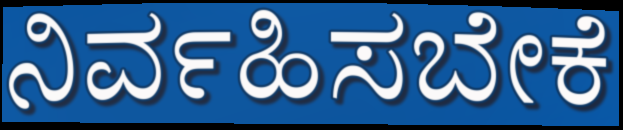
ನಿರ್ವಹಿಸಬೇಕೆ